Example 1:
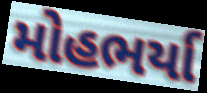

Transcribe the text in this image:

મોહભર્યા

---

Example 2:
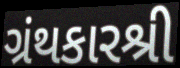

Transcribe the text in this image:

ગ્રંથકારશ્રી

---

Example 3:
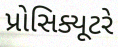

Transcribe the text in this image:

પ્રોસિક્યૂટરે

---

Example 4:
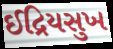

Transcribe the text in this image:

ઈદ્રિયસુખ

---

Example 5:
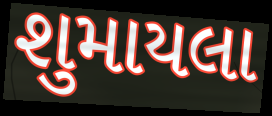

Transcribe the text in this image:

શુમાયલા